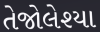
તેજોલેશ્યા